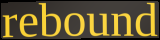
rebound